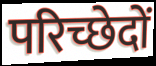
परिच्छेदों